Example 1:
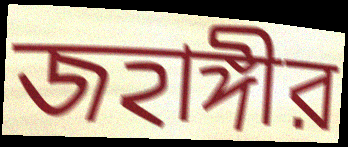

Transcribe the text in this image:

জহাঙ্গীর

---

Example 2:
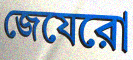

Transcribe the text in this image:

জেযেরো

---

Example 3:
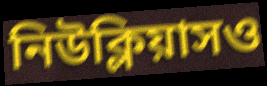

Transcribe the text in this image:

নিউক্লিয়াসও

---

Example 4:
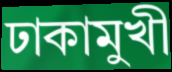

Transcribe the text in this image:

ঢাকামুখী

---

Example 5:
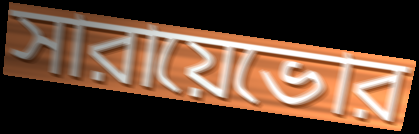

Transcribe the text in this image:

সারায়েভোর